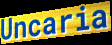
Uncaria